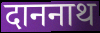
दाननाथ